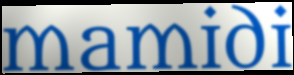
mamidi